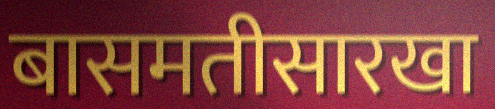
बासमतीसारखा